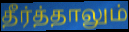
தீர்த்தாலும்